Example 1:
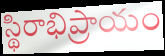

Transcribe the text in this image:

స్థిరాభిప్రాయం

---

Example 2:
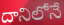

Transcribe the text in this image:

దానిలోనే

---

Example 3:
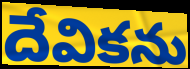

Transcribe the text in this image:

దేవికను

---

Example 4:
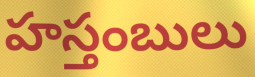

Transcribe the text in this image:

హస్తంబులు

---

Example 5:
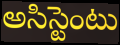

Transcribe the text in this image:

అసిస్టెంటు